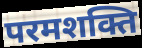
परमशक्ति